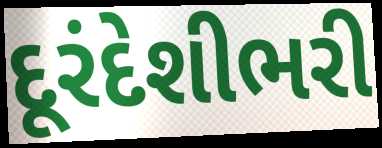
દૂરંદેશીભરી